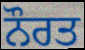
ਨੌਰਤ